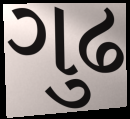
ગુઢ